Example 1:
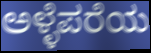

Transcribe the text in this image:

ಅಳ್ಳೆಪರೆಯ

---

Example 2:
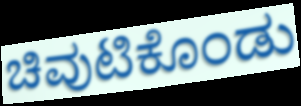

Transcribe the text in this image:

ಚಿವುಟಿಕೊಂಡು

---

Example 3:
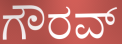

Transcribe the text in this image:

ಗೌರವ್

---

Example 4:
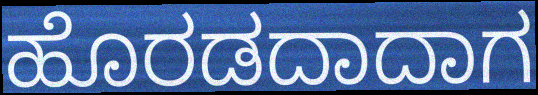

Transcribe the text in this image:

ಹೊರಡದಾದಾಗ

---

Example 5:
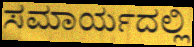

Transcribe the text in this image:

ಸಮಾರ್ಯದಲ್ಲಿ